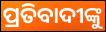
ପ୍ରତିବାଦୀଙ୍କୁ